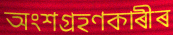
অংশগ্ৰহণকাৰীৰ